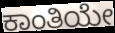
ಕಾಂತಿಯೇ